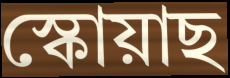
স্কোয়াছ